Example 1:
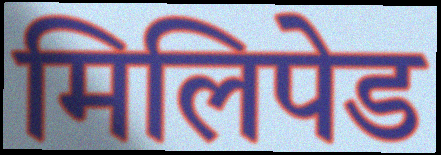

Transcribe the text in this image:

मिलिपेड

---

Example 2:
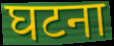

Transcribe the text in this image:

घटना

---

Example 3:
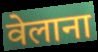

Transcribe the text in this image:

वेलाना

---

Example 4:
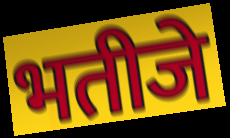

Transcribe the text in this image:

भतीजे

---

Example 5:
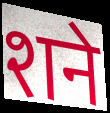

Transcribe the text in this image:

शने